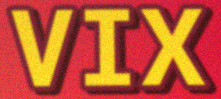
VIX